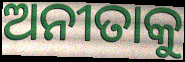
ଅନୀତାକୁ